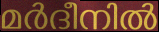
മർദീനിൽ